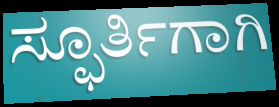
ಸ್ಫೂರ್ತಿಗಾಗಿ